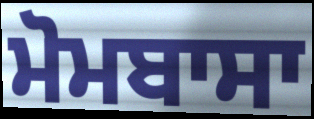
ਮੋਮਬਾਸਾ